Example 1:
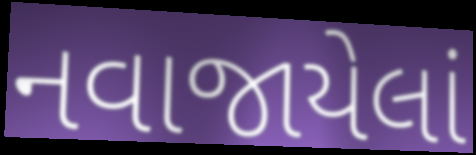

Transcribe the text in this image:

નવાજાયેલાં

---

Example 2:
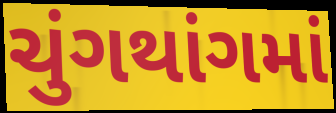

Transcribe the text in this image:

ચુંગથાંગમાં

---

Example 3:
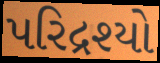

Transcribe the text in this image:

પરિદ્રશ્યો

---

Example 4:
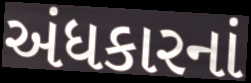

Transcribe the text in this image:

અંધકારનાં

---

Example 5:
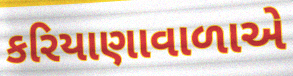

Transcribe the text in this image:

કરિયાણાવાળાએ